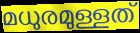
മധുരമുള്ളത്